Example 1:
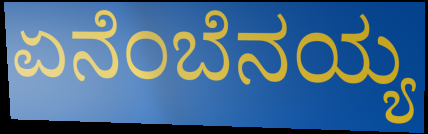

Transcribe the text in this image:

ಏನೆಂಬೆನಯ್ಯ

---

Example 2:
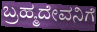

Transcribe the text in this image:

ಬ್ರಹ್ಮದೇವನಿಗೆ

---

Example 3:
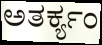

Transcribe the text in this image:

ಅತರ್ಕ್ಯಂ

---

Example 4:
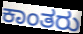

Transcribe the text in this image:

ಕಾಂತರು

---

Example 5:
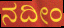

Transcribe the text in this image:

ನದೀಂ